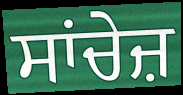
ਸਾਂਚੇਜ਼